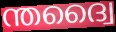
ന്തദ്വൈ